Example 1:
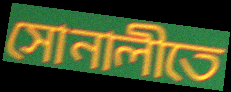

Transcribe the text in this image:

সোনালীতে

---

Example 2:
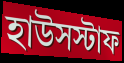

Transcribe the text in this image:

হাউসস্টাফ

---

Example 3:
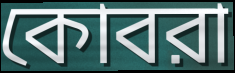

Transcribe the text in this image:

কোবরা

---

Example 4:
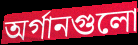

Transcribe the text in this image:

অর্গানগুলো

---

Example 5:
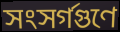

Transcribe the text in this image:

সংসর্গগুণে